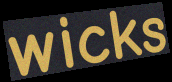
wicks